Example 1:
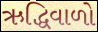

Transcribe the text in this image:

ઋદ્ધિવાળો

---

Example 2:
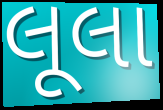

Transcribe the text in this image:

લૂલા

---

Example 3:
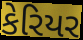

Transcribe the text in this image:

કેરિયર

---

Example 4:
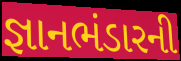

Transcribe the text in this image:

જ્ઞાનભંડારની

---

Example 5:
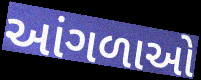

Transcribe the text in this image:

આંગળાઓ